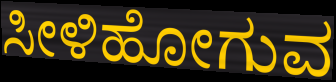
ಸೀಳಿಹೋಗುವ